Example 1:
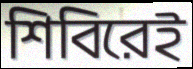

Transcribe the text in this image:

শিবিরেই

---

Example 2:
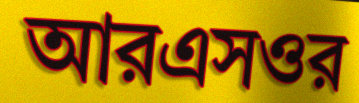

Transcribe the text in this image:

আরএসওর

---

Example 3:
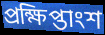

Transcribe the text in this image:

প্রক্ষিপ্তাংশ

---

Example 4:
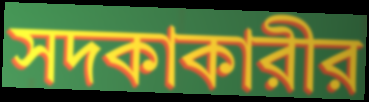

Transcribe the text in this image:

সদকাকারীর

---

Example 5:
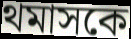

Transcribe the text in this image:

থমাসকে